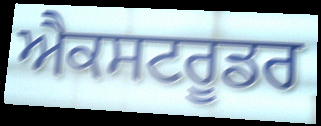
ਐਕਸਟਰੂਡਰ